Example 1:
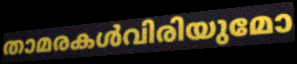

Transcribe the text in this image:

താമരകൾവിരിയുമോ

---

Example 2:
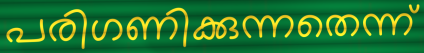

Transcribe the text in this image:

പരിഗണിക്കുന്നതെന്ന്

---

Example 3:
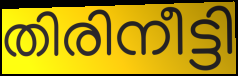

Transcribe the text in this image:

തിരിനീട്ടി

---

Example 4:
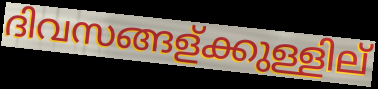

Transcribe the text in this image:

ദിവസങ്ങള്ക്കുള്ളില്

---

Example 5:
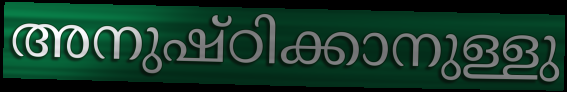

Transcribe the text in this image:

അനുഷ്ഠിക്കാനുള്ളു